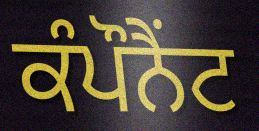
ਕੰਪੌਨੈਂਟ